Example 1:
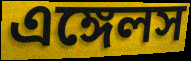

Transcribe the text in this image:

এঙ্গেলস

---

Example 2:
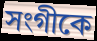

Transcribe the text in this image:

সংগীকে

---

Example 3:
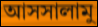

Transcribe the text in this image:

আসসালামু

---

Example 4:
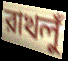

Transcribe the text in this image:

রাখলুঁ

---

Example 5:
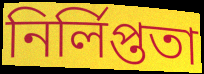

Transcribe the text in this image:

নির্লিপ্ততা